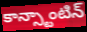
కాన్స్టాంటిన్